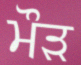
ਮੌਡ਼